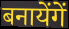
बनायेंगें